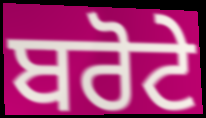
ਬਰੋਟੇ